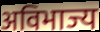
अविभाज्य